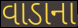
વાડાના